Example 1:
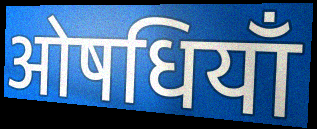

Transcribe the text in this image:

ओषधियाँ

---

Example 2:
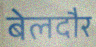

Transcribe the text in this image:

बेलदौर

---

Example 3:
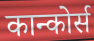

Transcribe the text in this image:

कान्कोर्स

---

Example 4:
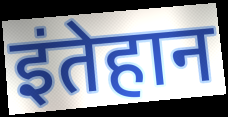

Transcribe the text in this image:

इंतेहान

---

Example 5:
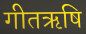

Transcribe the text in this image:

गीतऋषि